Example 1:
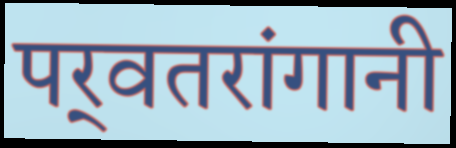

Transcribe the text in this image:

पर्वतरांगानी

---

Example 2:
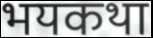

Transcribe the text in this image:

भयकथा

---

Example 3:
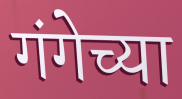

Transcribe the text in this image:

गंगेच्या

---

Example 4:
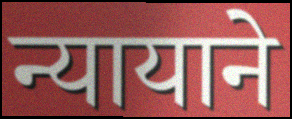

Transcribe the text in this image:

न्यायाने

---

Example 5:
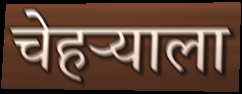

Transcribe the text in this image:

चेहऱ्याला